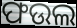
ଫଉଲ